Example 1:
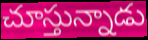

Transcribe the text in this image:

చూస్తున్నాడు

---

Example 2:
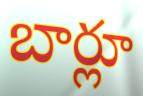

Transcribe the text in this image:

బార్లూ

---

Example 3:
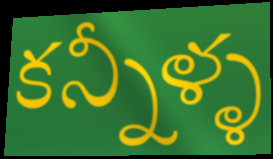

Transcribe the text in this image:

కన్నీళ్ళ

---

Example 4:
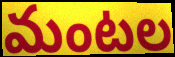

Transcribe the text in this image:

మంటల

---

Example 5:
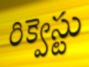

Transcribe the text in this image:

రిక్వెస్టు